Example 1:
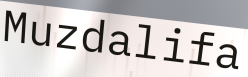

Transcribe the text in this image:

Muzdalifa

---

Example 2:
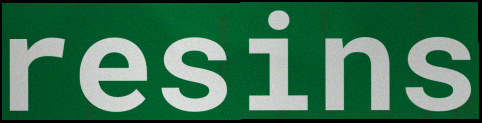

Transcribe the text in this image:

resins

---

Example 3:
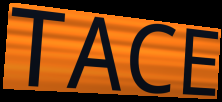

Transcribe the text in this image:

TACE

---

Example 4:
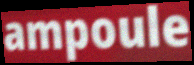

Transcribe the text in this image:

ampoule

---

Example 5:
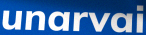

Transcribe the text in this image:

unarvai